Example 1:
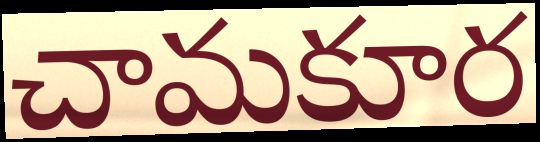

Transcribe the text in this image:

చామకూర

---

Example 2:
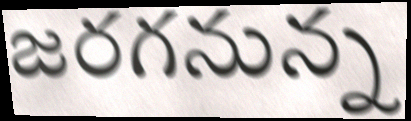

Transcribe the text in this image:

జరగనున్న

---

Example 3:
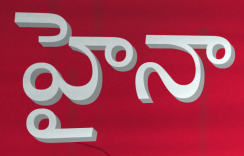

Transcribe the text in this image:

హైనా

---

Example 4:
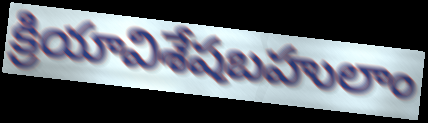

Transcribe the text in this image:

క్రియావిశేషబహులాం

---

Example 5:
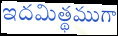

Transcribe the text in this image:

ఇదమిత్థముగా